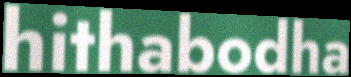
hithabodha